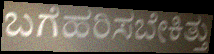
ಬಗೆಹರಿಸಬೇಕಿತ್ತು